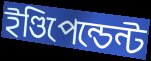
ইণ্ডিপেন্ডেন্ট